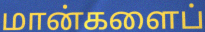
மான்களைப்